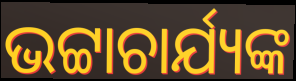
ଭଟ୍ଟାଚାର୍ଯ୍ୟଙ୍କ